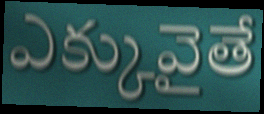
ఎక్కువైతే